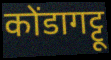
कोंडागट्टू